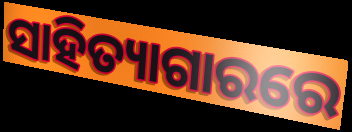
ସାହିତ୍ୟାଗାରରେ